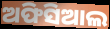
ଅଫିସିଆଲ